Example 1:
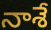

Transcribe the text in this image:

నాశే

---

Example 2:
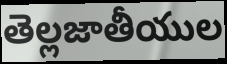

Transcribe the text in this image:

తెల్లజాతీయుల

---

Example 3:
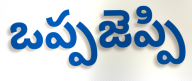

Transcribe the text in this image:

ఒప్పజెప్పి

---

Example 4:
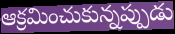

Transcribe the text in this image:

ఆక్రమించుకున్నప్పుడు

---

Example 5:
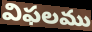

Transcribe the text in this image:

విఫలము